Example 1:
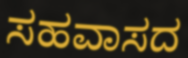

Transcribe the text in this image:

ಸಹವಾಸದ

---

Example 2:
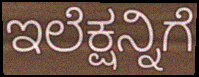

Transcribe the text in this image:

ಇಲೆಕ್ಷನ್ನಿಗೆ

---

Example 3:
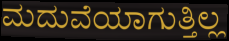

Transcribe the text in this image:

ಮದುವೆಯಾಗುತ್ತಿಲ್ಲ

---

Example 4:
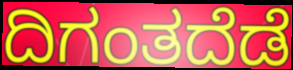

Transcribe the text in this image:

ದಿಗಂತದೆಡೆ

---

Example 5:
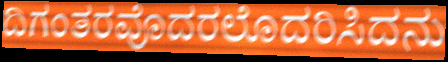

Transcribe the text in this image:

ದಿಗಂತರವೊದರಲೊದರಿಸಿದನು